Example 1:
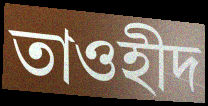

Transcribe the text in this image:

তাওহীদ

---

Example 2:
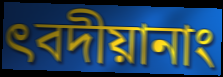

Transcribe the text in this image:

ৎবদীয়ানাং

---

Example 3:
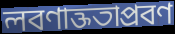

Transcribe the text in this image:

লবণাক্ততাপ্রবণ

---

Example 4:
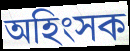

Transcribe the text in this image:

অহিংসক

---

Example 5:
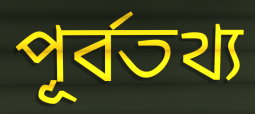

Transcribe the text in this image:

পূর্বতথ্য